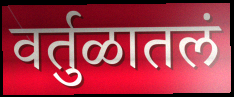
वर्तुळातलं